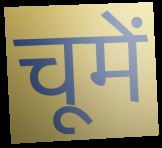
चूमें